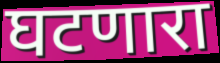
घटणारा